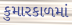
કુમારકાળમાં